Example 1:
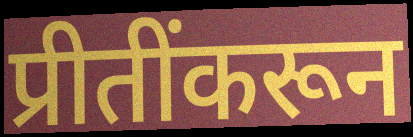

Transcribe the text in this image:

प्रीतींकरून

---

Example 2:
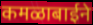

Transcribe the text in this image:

कमळाबाईने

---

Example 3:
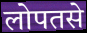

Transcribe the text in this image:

लोपतसे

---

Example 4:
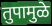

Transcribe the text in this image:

तुपामुळे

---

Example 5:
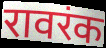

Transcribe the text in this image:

रावरंक